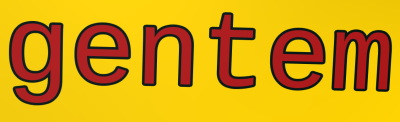
gentem